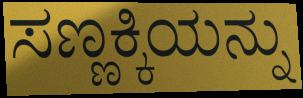
ಸಣ್ಣಕ್ಕಿಯನ್ನು